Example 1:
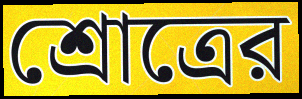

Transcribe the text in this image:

শ্রোত্রের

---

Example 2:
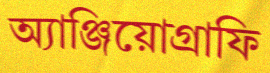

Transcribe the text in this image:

অ্যাঞ্জিয়োগ্রাফি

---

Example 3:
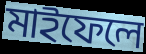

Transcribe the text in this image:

মাইফেলে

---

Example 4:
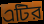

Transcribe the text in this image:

এটির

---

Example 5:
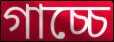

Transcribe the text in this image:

গাচ্চে